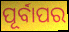
ପୂର୍ବାପର